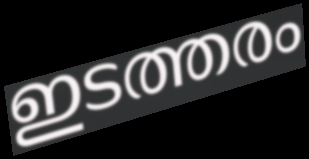
ഇടത്തരം